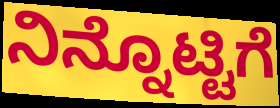
ನಿನ್ನೊಟ್ಟಿಗೆ